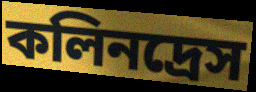
কলিনদ্রেস